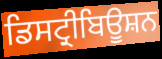
ਡਿਸਟ੍ਰੀਬਿਊਸ਼ਨ